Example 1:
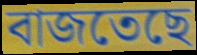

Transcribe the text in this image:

বাজতেছে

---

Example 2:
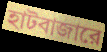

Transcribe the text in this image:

হাটবাজারে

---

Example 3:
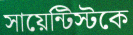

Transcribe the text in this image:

সায়েন্টিস্টকে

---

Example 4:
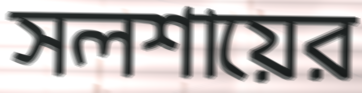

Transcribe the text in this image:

সলশায়ের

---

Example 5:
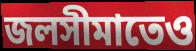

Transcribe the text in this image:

জলসীমাতেও